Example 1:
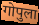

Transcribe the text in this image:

गोपुला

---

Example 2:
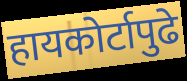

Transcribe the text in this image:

हायकोर्टापुढे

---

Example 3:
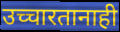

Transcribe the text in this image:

उच्चारतानाही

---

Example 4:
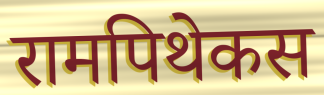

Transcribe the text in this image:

रामपिथेकस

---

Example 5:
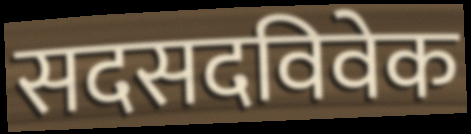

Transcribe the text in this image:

सदसदविवेक